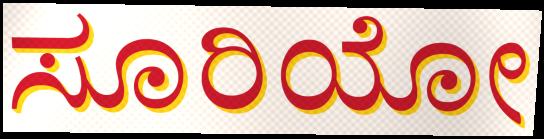
ಸೂರಿಯೋ